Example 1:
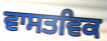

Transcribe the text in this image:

ਵਾਸਤਵਿਕ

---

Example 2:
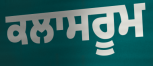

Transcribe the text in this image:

ਕਲਾਸਰੂਮ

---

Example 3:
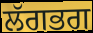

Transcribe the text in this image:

ਲੱਗਭਗ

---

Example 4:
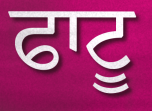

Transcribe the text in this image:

ਫਾਟੂ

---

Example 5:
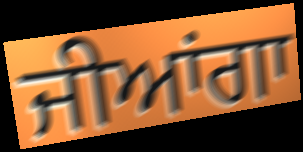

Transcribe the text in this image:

ਜੀਆਂਗਾ